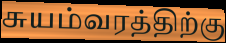
சுயம்வரத்திற்கு